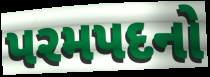
પરમપદનો